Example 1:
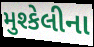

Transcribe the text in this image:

મુશ્કેલીના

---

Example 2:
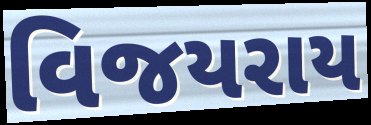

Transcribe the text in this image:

વિજયરાય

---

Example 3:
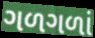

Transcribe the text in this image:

ગળગળાં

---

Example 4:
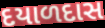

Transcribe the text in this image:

દયાળદાસ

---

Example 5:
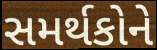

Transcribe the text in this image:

સમર્થકોને